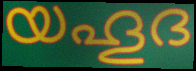
യഹൂദ